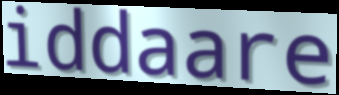
iddaare